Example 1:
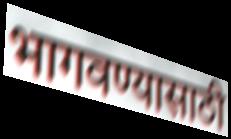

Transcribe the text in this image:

भागवण्यासाठी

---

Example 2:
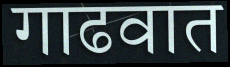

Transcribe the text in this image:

गाढवात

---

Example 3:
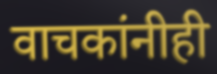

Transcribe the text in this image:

वाचकांनीही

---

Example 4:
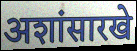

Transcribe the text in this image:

अशांसारखे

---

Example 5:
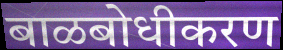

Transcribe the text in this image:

बाळबोधीकरण